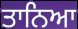
ਤਾਨਿਆ